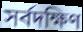
সর্বদক্ষিণ